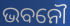
ଭବନୌ